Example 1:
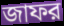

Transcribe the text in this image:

জাফর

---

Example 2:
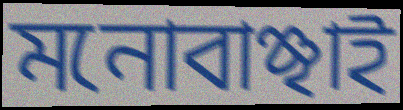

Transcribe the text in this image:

মনোবাঞ্ছাই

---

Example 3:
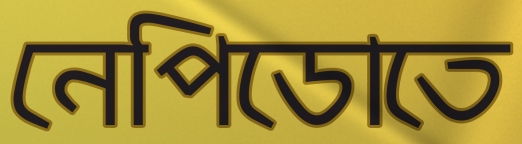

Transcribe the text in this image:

নেপিডোতে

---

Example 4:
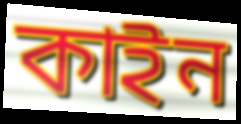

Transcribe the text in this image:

কাইন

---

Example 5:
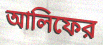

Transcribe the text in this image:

আলিফের